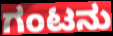
ಗಂಟನು